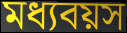
মধ্যবয়স